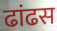
ढांढस